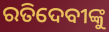
ରତିଦେବୀଙ୍କୁ